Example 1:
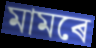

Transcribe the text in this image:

মামৰে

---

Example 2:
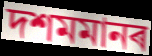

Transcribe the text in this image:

দশমমানৰ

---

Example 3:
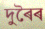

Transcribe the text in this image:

দুৰৈৰ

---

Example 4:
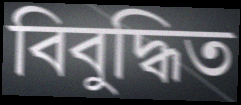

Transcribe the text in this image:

বিবুদ্ধিত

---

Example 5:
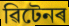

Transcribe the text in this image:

ৱিটেনৰ